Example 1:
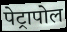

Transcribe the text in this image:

पेट्रापोल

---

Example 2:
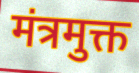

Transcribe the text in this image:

मंत्रमुक्त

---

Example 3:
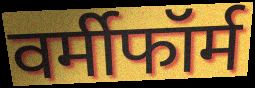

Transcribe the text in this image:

वर्मीफॉर्म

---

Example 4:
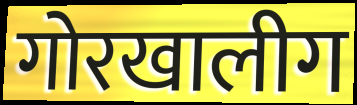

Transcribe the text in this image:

गोरखालीग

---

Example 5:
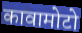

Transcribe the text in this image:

कावामोटो